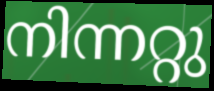
നിന്നറ്റു